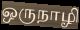
ஒருநாழி